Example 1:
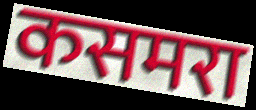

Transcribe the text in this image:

कसमरा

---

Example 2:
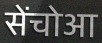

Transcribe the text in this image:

सेंचोआ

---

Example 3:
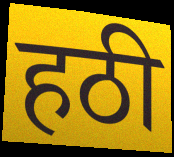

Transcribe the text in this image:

हठी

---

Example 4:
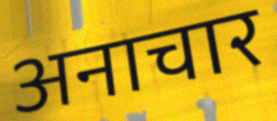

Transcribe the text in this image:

अनाचार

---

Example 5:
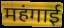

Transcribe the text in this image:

महंगाई